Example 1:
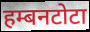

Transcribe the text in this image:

हम्बनटोटा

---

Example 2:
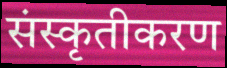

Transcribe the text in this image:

संस्कृतीकरण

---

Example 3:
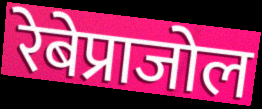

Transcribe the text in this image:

रेबेप्राजोल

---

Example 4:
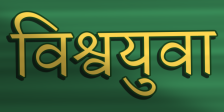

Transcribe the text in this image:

विश्वयुवा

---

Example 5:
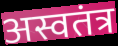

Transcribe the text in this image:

अस्वतंत्र